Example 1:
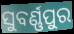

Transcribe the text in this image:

ସୁବର୍ଣ୍ଣପୁର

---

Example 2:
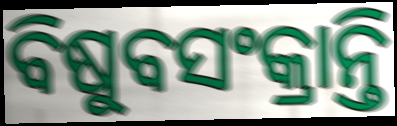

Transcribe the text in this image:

ବିଷୁବସଂକ୍ରାନ୍ତି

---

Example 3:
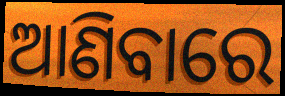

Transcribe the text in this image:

ଆଣିବାରେ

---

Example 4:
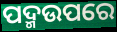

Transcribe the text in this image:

ପଦ୍ମଉପରେ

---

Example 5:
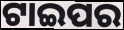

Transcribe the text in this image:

ଟାଇପର